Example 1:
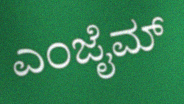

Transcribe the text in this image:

ಎಂಜೈಮ್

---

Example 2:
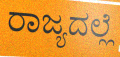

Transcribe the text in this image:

ರಾಜ್ಯದಲ್ಲೆ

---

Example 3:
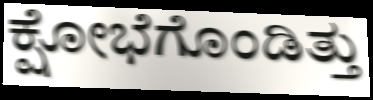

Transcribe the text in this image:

ಕ್ಷೋಭೆಗೊಂಡಿತ್ತು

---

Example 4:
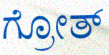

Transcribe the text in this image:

ಗ್ರೋತ್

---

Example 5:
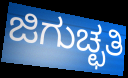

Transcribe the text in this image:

ಜಿಗುಚ್ಛತಿ